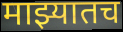
माझ्यातच